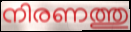
നിരണത്തു